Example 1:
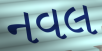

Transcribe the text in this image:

નવલ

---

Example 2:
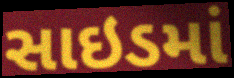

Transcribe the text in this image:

સાઇડમાં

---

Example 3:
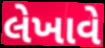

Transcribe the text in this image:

લેખાવે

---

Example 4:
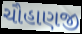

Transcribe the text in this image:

ચૌહાણજી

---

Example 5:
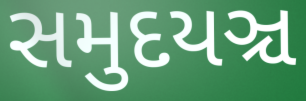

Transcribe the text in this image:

સમુદયઞ્ચ